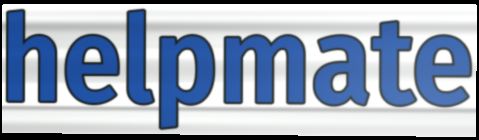
helpmate